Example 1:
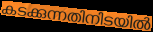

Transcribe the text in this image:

കടക്കുന്നതിനിടയിൽ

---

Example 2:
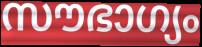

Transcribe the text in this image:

സൗഭാഗ്യം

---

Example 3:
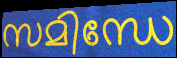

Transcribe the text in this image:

സമിന്ധേ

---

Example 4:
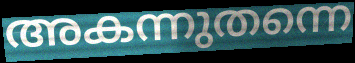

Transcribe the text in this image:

അകന്നുതന്നെ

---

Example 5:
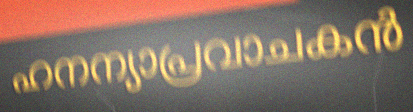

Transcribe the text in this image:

ഹനന്യാപ്രവാചകൻ